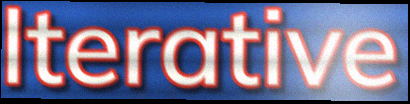
Iterative